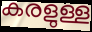
കരളുള്ള